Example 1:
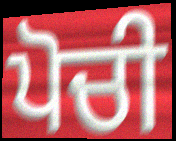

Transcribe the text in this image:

ਪੋਚੀ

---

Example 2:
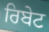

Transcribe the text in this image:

ਰਿਬੇਟ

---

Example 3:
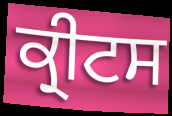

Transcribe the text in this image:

ਕ੍ਰੀਟਸ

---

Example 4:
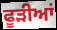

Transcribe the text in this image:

ਫੂੜੀਆਂ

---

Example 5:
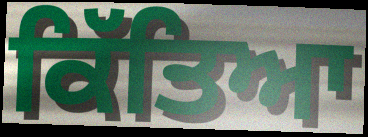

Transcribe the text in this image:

ਕਿੱਤਿਆ